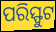
ପରିସ୍ଫୁଟ